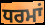
ਧਰਮਾਂ